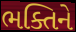
ભક્તિને